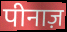
पीनाज़